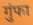
गुंफा